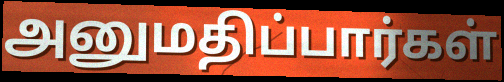
அனுமதிப்பார்கள்